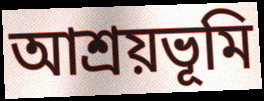
আশ্রয়ভূমি